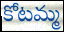
కోటమ్మ